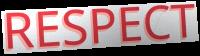
RESPECT